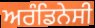
ਅਰੰਡਿਨੇਸੀ